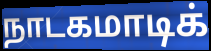
நாடகமாடிக்